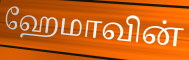
ஹேமாவின்